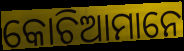
କୋଚିଆମାନେ